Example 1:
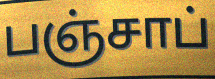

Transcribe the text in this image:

பஞ்சாப்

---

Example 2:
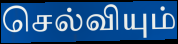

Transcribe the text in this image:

செல்வியும்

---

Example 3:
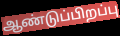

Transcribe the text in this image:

ஆண்டுப்பிறப்பு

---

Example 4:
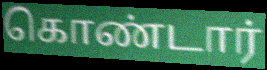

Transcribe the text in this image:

கொண்டார்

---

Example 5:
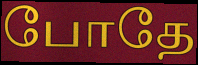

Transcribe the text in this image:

போதே